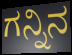
ಗನ್ನಿನ